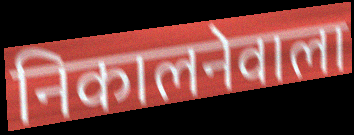
निकालनेवाला